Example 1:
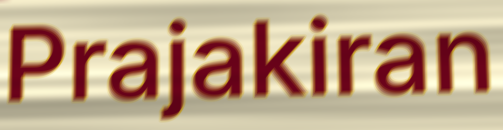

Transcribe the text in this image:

Prajakiran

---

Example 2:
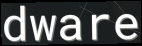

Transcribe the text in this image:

dware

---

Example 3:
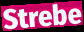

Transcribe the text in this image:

Strebe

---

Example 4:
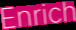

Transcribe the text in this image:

Enrich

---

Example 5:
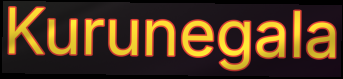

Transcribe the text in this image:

Kurunegala